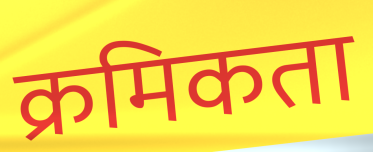
क्रमिकता